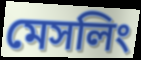
মেসলিং